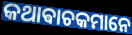
କଥାଵାଚକମାନେ